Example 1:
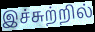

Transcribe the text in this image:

இச்சுற்றில்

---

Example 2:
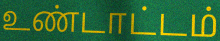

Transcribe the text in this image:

உண்டாட்டம்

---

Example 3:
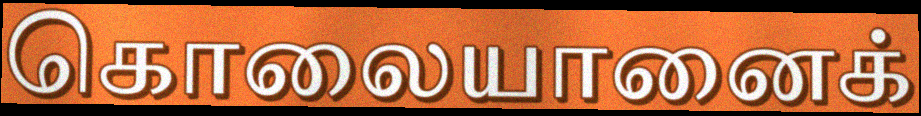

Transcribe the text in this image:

கொலையானைக்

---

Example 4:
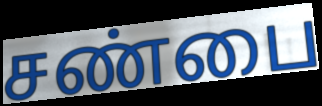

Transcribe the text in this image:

சண்பை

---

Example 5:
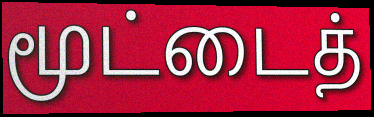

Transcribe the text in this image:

மூட்டைத்